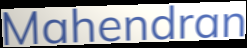
Mahendran